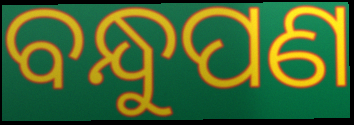
ବନ୍ଧୁପଣ